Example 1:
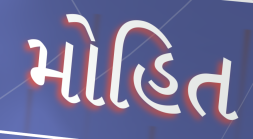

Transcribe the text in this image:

મોહિત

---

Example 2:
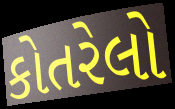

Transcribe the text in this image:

કોતરેલો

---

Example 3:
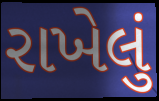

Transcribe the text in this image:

રાખેલું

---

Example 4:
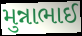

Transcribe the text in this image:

મુન્નાભાઈ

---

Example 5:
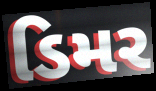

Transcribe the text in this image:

ડિમર